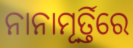
ନାନାମୂର୍ତ୍ତିରେ